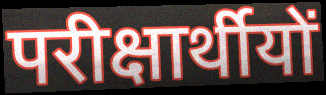
परीक्षार्थीयों